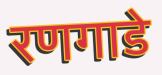
रणगाडे